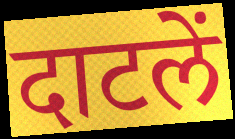
दाटलें